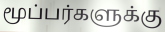
மூப்பர்களுக்கு